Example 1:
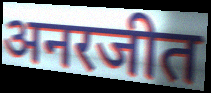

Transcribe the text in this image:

अनरजीत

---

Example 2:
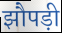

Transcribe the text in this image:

झौपड़ी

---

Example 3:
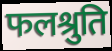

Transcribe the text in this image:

फलश्रुति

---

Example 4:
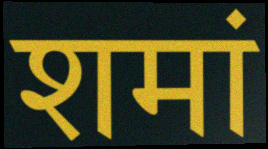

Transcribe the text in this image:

शमां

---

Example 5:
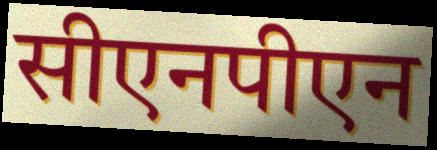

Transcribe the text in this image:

सीएनपीएन